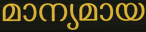
മാന്യമായ